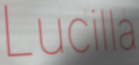
Lucilla